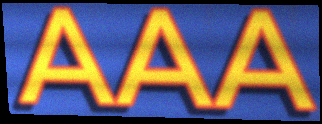
AAA